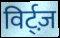
विर्ट्ज़